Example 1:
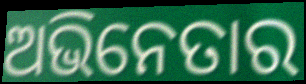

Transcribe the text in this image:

ଅଭିନେତାର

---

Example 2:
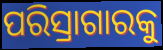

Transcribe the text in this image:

ପରିସ୍ରାଗାରକୁ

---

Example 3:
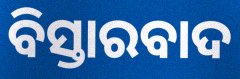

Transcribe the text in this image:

ବିସ୍ତାରବାଦ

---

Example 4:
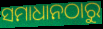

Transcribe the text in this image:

ସମାଧାନଠାରୁ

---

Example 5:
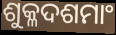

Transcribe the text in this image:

ଶୁକ୍ଳଦଶମାଂ